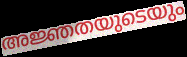
അജ്ഞതയുടെയും